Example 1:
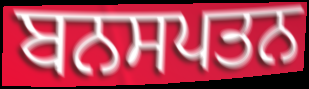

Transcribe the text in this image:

ਬਨਸਪਤਨ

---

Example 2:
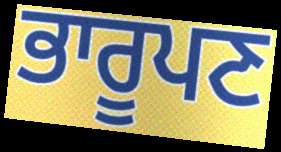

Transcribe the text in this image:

ਭਾਰੂਪਣ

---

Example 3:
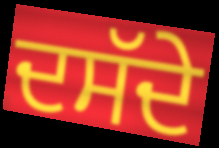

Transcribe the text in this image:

ਦਸੱਦੇ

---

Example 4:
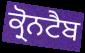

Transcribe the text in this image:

ਕ੍ਰੋਨਟੈਬ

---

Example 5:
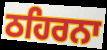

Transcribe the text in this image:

ਠਹਿਰਨਾ